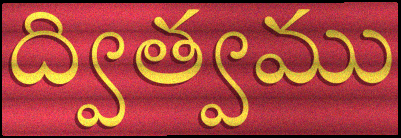
ద్విత్వము